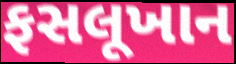
ફસલૂખાન